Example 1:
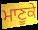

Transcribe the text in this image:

ਮਾਣੂਕੇ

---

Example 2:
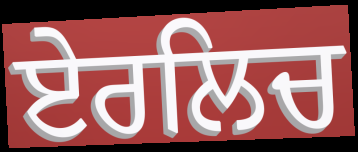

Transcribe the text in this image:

ਏਰਲਿਚ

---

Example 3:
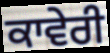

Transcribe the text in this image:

ਕਾਵੇਰੀ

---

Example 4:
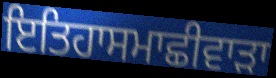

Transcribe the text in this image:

ਇਤਿਹਾਸਮਾਛੀਵਾੜਾ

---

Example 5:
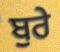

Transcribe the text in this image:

ਬੁਰੇ